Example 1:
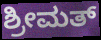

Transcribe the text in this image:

ಶ್ರೀಮತ್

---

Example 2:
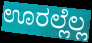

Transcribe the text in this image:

ಊರಲ್ಲೆಲ್ಲ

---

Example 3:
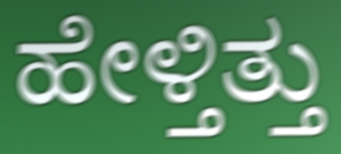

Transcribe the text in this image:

ಹೇಳ್ತಿತ್ತು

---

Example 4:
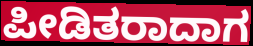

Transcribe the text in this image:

ಪೀಡಿತರಾದಾಗ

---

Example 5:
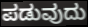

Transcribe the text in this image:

ಪಡುವುದು